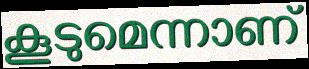
കൂടുമെന്നാണ്